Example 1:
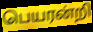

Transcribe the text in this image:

பெயரன்றி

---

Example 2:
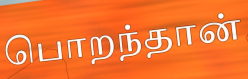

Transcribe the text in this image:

பொறந்தான்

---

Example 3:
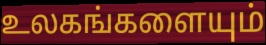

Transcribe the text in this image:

உலகங்களையும்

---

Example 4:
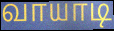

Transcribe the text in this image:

வாயாடி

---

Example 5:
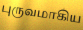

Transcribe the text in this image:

புருவமாகிய